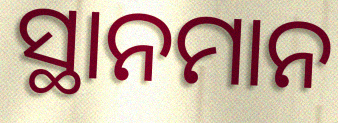
ସ୍ଥାନମାନ